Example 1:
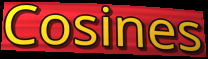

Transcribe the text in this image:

Cosines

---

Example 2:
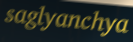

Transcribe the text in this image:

saglyanchya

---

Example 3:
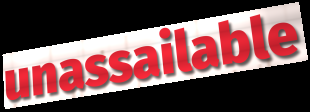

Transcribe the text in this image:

unassailable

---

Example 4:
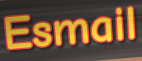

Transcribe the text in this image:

Esmail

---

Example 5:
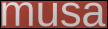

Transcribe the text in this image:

musa